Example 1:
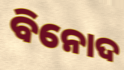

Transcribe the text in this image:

ବିନୋଦ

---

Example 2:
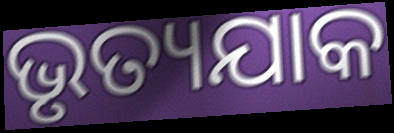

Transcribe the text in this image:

ଭୃତ୍ୟଯାକ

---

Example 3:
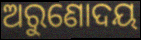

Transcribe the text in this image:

ଅରୁଣୋଦୟ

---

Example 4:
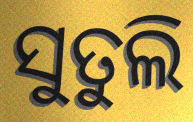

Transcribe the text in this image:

ସୁତୁଲି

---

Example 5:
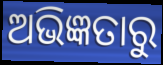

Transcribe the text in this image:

ଅଭିଜ୍ଞତାରୁ